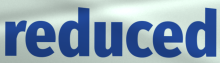
reduced